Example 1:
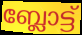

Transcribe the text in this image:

ബ്ലോട്ട്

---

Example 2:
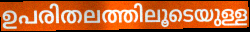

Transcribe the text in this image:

ഉപരിതലത്തിലൂടെയുള്ള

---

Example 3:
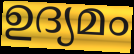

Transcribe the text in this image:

ഉദ്യമം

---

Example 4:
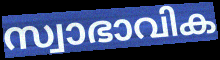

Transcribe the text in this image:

സ്വാഭാവിക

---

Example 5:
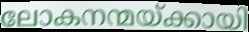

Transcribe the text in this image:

ലോകനന്മയ്ക്കായി